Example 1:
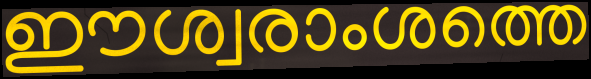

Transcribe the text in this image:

ഈശ്വരാംശത്തെ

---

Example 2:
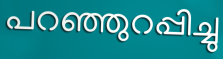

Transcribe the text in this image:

പറഞ്ഞുറപ്പിച്ചു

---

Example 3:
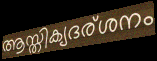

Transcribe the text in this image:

ആസ്തിക്യദര്ശനം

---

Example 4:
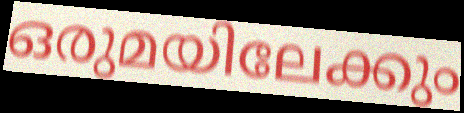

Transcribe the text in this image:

ഒരുമയിലേക്കും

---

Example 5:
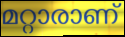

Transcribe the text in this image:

മറ്റാരാണ്